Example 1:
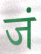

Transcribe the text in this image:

जं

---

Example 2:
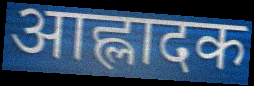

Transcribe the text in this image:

आह्लादक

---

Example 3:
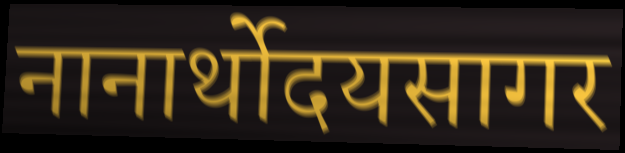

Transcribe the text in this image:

नानार्थोदयसागर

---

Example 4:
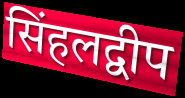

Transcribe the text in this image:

सिंहलद्वीप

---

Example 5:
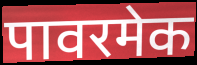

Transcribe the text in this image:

पावरमेक